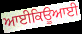
ਆਈਕਿਊਆਈ